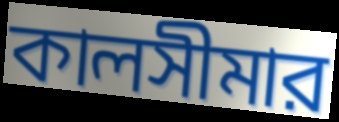
কালসীমার